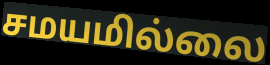
சமயமில்லை